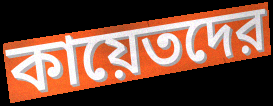
কায়েতদের